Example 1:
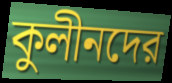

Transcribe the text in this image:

কুলীনদের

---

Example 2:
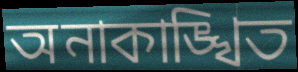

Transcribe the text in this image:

অনাকাঙ্খিত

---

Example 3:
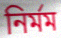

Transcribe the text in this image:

নির্মম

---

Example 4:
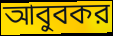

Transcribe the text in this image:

আবুবকর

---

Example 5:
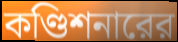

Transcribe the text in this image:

কণ্ডিশনারের